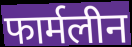
फार्मलीन